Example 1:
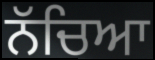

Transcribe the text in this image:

ਨੱਚਿਆ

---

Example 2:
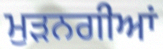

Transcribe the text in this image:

ਮੁੜਨਗੀਆਂ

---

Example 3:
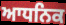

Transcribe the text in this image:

ਆਧਨਿਕ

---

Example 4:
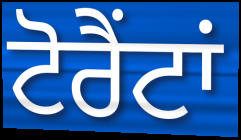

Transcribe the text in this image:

ਟੋਰੈਂਟਾਂ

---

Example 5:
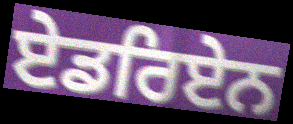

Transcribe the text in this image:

ਏਡਰਿਏਨ